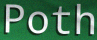
Poth